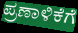
ಪ್ರಣಾಳಿಕೆಗೆ